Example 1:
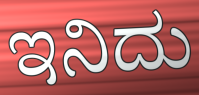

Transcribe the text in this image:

ಇನಿದು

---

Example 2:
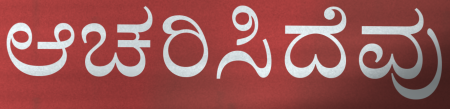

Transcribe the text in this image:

ಆಚರಿಸಿದೆವು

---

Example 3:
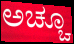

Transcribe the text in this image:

ಅಚ್ಚೂ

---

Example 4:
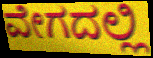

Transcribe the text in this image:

ವೇಗದಲ್ಲಿ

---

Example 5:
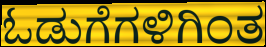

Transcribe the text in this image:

ಓಡುಗೆಗಳಿಗಿಂತ